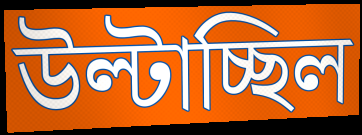
উল্টাচ্ছিল